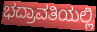
ಭದ್ರಾವತಿಯಲ್ಲಿ